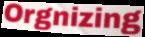
Orgnizing